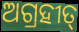
ଅଗ୍ରହୀତ୍